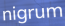
nigrum